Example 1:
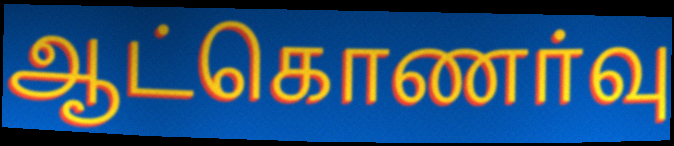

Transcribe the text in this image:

ஆட்கொணர்வு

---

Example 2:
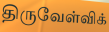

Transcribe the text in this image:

திருவேள்விக்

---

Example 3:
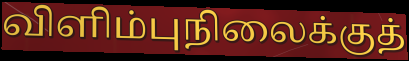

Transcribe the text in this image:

விளிம்புநிலைக்குத்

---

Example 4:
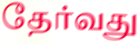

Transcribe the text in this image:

தேர்வது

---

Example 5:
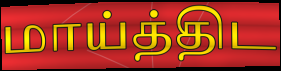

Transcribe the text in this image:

மாய்த்திட